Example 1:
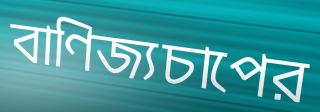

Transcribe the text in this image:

বাণিজ্যচাপের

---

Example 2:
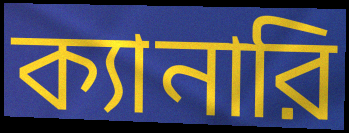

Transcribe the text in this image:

ক্যানারি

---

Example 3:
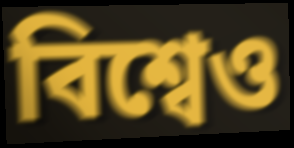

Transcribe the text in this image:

বিশ্বেও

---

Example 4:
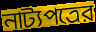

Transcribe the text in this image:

নাট্যপত্রের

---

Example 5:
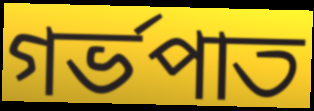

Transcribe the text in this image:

গর্ভপাত